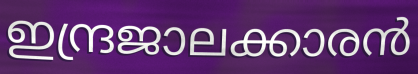
ഇന്ദ്രജാലക്കാരൻ